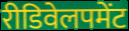
रीडिवेलपमेंट